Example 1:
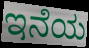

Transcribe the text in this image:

ಇನೆಯ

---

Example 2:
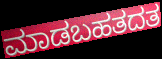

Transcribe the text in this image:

ಮಾಡಬಹತದತ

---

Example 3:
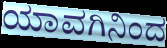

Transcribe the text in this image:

ಯಾವಗಿನಿಂದ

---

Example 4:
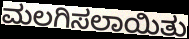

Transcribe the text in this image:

ಮಲಗಿಸಲಾಯಿತು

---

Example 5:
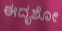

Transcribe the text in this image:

ಈದೃಶೋ